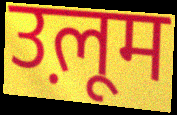
उ़लूम